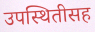
उपस्थितीसह